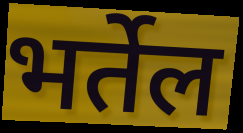
भर्तेल